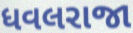
ધવલરાજા